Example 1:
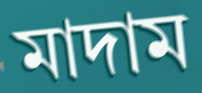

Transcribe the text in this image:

মাদাম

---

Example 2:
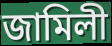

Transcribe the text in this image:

জামিলী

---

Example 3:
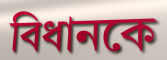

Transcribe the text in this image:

বিধানকে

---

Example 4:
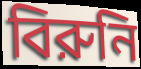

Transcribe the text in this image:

বিরুনি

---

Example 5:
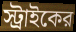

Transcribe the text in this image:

স্ট্রাইকের